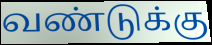
வண்டுக்கு